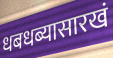
धबधब्यासारखं